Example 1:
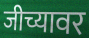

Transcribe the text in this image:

जीच्यावर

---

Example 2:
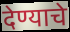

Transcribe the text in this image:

देण्याचे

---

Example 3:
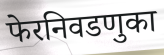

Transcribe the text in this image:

फेरनिवडणुका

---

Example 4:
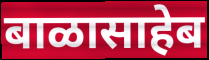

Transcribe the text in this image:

बाळासाहेब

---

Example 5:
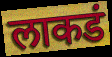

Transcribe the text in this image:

लाकडं